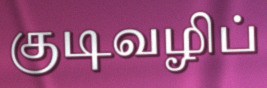
குடிவழிப்